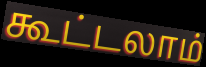
கூட்டலாம்